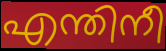
എന്തിനീ